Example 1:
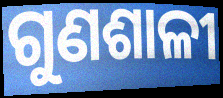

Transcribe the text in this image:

ଗୁଣଶାଳୀ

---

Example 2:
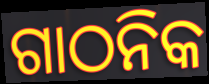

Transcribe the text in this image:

ଗାଠନିକ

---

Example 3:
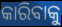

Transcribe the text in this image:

କାରିବାକୁ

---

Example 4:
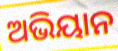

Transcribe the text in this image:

ଅଭିୟାନ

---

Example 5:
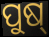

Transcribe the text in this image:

ପୁଷ୍